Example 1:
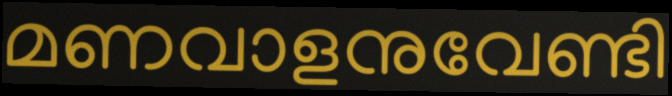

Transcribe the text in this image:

മണവാളനുവേണ്ടി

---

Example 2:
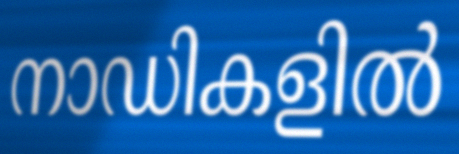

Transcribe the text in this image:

നാഡികളിൽ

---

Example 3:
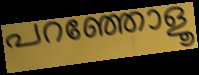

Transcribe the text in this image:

പറഞ്ഞോളൂ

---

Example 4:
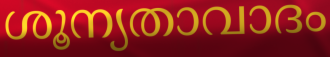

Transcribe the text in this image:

ശൂന്യതാവാദം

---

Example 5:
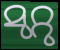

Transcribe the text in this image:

മുറ്റു